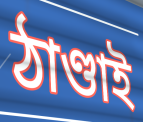
ঠাণ্ডাই